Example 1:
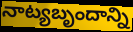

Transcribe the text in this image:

నాట్యబృందాన్ని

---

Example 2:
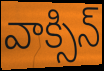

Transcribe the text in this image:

వాక్సిన్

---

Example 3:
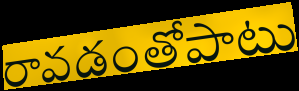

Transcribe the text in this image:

రావడంతోపాటు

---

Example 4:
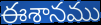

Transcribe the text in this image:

ఈశానము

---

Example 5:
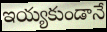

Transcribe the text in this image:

ఇయ్యకుండానే